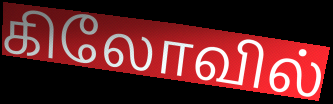
கிலோவில்